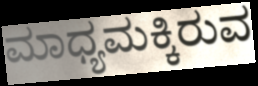
ಮಾಧ್ಯಮಕ್ಕಿರುವ